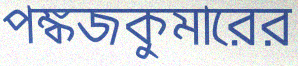
পঙ্কজকুমারের